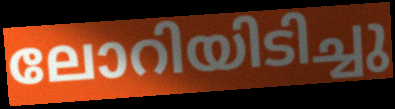
ലോറിയിടിച്ചു